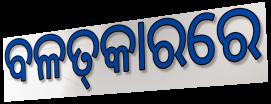
ବଳତ୍‌କାରରେ